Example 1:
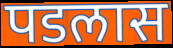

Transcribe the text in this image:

पडलास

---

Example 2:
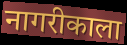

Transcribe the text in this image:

नागरीकाला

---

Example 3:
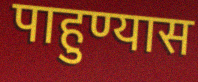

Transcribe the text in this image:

पाहुण्यास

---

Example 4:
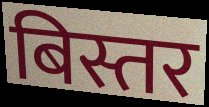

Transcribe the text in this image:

बिस्तर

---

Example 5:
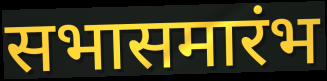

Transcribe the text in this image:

सभासमारंभ